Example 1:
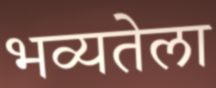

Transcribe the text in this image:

भव्यतेला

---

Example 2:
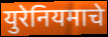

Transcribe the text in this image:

युरेनियमाचे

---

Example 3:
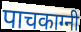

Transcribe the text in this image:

पाचकाग्नी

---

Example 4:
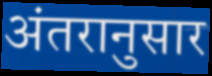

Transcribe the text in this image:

अंतरानुसार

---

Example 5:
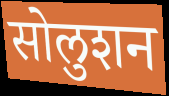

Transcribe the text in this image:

सोलुशन